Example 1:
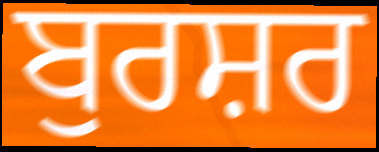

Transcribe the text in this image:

ਬੁਰਸ਼ਰ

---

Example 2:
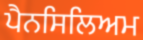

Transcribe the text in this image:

ਪੈਨਸਿਲਿਅਮ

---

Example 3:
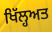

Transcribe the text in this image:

ਖਿੱਲ੍ਹਅਤ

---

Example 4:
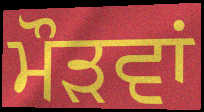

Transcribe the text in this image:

ਮੌੜਵਾਂ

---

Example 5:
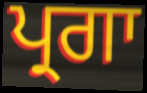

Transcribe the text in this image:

ਪ੍ਰਗਾ